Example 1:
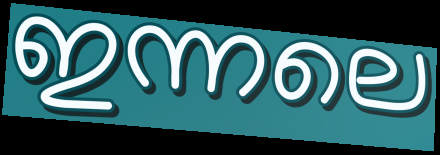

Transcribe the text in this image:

ഇന്നലെ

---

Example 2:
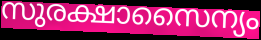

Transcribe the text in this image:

സുരക്ഷാസൈന്യം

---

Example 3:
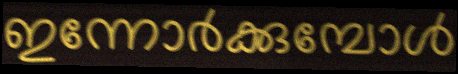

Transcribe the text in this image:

ഇന്നോർക്കുമ്പോൾ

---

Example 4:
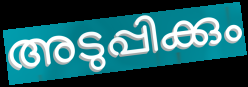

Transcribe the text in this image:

അടുപ്പിക്കും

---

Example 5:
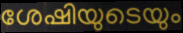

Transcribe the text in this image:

ശേഷിയുടെയും